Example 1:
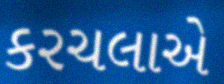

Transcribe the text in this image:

કરચલાએ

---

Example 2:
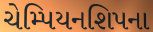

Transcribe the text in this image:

ચેમ્પિયનશિપના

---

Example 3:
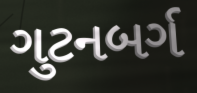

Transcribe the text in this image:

ગુટનબર્ગ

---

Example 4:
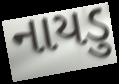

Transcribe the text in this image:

નાયડુ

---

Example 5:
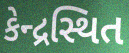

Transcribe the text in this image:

કેન્દ્રસ્થિત